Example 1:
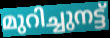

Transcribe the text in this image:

മുറിച്ചുനട്ട്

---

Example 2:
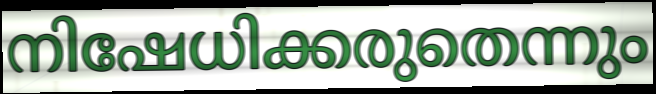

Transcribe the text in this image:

നിഷേധിക്കരുതെന്നും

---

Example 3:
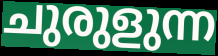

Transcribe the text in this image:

ചുരുളുന്ന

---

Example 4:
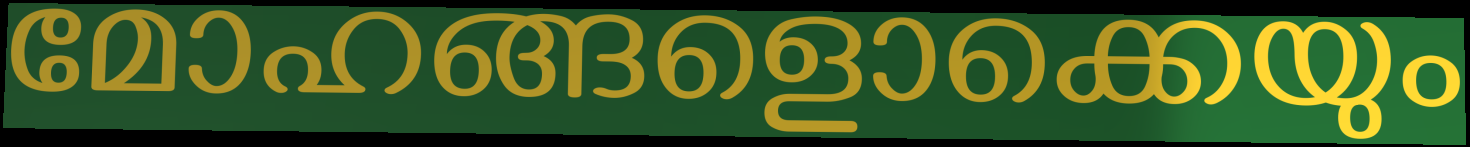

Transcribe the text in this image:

മോഹങ്ങളൊക്കെയും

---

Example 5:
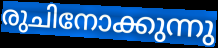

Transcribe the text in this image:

രുചിനോക്കുന്നു